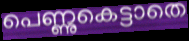
പെണ്ണുകെട്ടാതെ